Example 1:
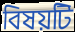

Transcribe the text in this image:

বিষয়টি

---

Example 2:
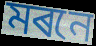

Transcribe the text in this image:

মৰনে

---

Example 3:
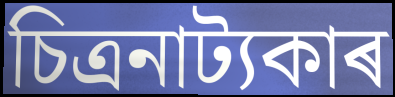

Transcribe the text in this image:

চিত্ৰনাট্যকাৰ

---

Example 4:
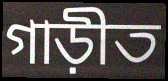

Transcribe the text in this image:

গাড়ীত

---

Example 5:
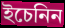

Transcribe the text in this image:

ইচেনিন